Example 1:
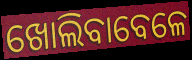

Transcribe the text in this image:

ଖୋଲିବାବେଳେ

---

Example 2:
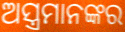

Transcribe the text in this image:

ଅସ୍ତ୍ରମାନଙ୍କର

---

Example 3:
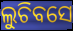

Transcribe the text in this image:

ଲୁଚିବସେ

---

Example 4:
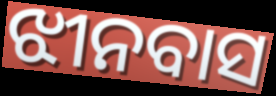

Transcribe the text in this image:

ଝୀନବାସ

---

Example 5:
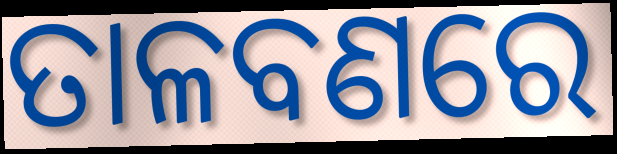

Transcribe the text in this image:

ତାଳବଣରେ